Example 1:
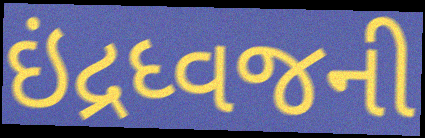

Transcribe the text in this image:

ઇંદ્રધ્વજની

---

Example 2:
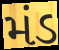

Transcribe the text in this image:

મંડ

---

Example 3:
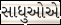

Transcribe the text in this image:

સાધુઓએ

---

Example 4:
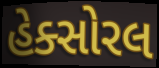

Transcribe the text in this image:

હેક્સોરલ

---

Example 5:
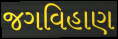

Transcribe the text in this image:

જગવિહાણ